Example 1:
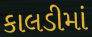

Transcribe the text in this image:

કાલડીમાં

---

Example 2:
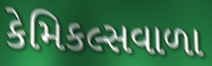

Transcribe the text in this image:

કેમિકલ્સવાળા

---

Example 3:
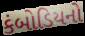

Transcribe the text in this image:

કંબોડિયનો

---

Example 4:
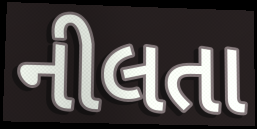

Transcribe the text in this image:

નીલતા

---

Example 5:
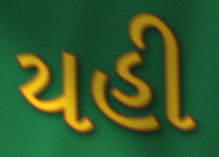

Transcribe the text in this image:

યહી